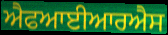
ਐਫਆਈਆਰਐਸ